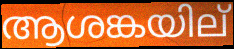
ആശങ്കയില്